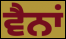
ਵੈਨਾਂ